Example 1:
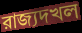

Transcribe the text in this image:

রাজ্যদখল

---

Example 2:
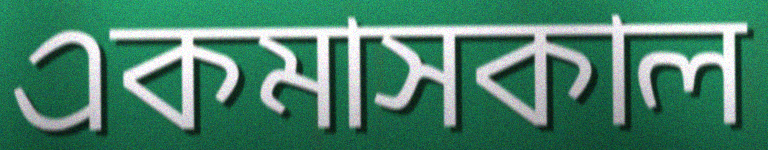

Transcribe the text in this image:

একমাসকাল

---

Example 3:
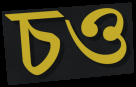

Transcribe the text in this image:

চও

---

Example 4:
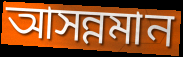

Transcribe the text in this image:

আসন্নমান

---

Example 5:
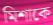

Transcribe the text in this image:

মিশাকে